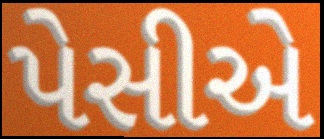
પેસીએ